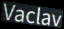
Vaclav